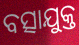
ବତ୍ସାଯୁକ୍ତ